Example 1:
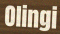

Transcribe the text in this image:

Olingi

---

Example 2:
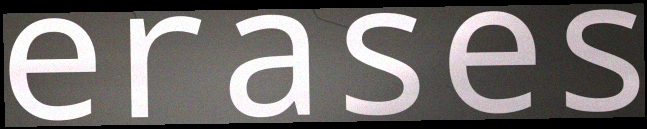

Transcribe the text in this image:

erases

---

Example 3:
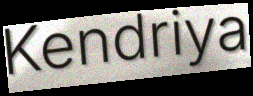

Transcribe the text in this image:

Kendriya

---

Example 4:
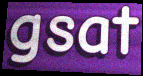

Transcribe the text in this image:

gsat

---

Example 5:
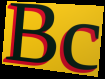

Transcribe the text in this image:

Bc